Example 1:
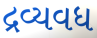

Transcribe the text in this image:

દ્રવ્યવધ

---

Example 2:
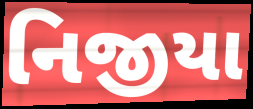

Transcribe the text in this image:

નિજીયા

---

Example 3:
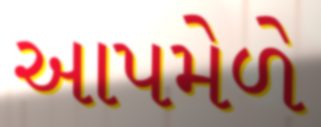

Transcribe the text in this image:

આપમેળે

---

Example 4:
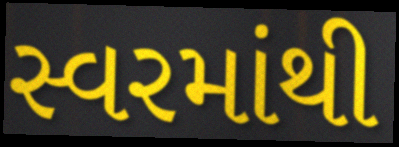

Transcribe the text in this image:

સ્વરમાંથી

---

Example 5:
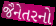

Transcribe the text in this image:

જૈનેતરનો